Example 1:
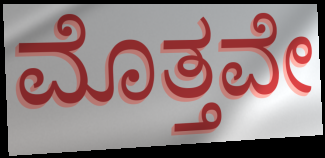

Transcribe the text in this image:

ಮೊತ್ತವೇ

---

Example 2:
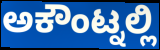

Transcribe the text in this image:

ಅಕೌಂಟ್ನಲ್ಲಿ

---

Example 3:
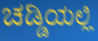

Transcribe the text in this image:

ಚಡ್ಡಿಯಲ್ಲಿ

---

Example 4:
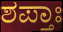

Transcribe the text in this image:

ಶಪ್ತಾಃ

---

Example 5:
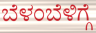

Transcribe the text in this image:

ಬೆಳಂಬೆಳಿಗ್ಗೆ